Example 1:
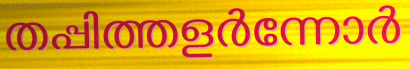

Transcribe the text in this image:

തപ്പിത്തളർന്നോർ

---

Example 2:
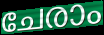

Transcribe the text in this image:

ചേരാം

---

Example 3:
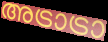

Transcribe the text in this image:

അട്രാട്രാ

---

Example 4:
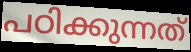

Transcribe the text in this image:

പഠിക്കുന്നത്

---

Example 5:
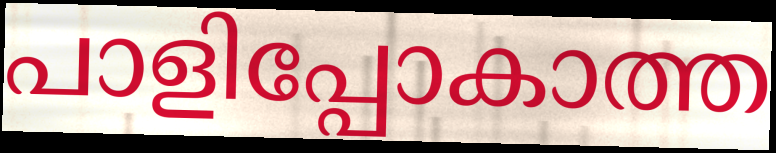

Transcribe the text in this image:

പാളിപ്പോകാത്ത